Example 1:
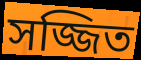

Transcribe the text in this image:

সজ্জিত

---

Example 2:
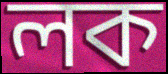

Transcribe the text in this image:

লক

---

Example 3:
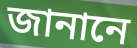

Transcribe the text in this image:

জানানে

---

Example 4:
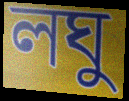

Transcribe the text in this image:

লঘু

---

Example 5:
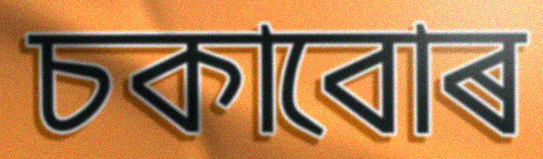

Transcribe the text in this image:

চকাবোৰ